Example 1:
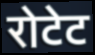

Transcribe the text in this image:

रोटेट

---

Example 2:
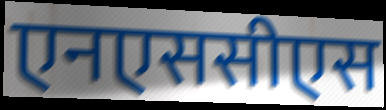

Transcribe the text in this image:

एनएससीएस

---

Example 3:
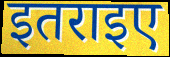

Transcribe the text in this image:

इतराइए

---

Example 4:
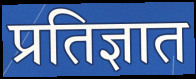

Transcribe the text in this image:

प्रतिज्ञात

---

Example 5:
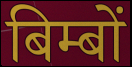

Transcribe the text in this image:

बिम्बों